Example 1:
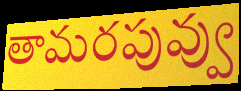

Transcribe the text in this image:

తామరపువ్వు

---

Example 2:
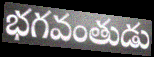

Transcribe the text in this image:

భగవంతుడు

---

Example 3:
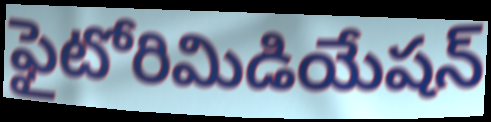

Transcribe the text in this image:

ఫైటోరిమిడియేషన్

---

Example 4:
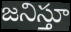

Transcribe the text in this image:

జనిస్తూ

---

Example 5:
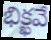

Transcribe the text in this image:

భిక్ఖవే